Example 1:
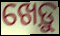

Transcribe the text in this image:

ଖେଡ଼ୁ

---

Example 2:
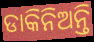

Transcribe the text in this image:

ଡାକିନିଅନ୍ତି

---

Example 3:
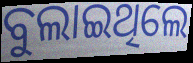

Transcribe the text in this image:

ବୁଲାଇଥିଲେ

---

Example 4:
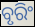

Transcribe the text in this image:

ବୃରିଂ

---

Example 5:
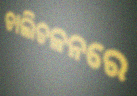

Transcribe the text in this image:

ଚାଲିଚଳନରେ